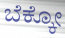
ಬೆಕ್ಕೋ